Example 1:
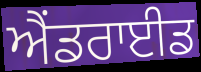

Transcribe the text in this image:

ਐਂਡਰਾਈਡ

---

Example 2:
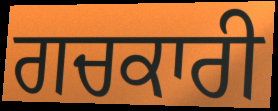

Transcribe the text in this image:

ਗਚਕਾਰੀ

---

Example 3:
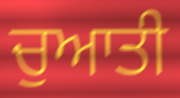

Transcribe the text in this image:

ਚੁਆਤੀ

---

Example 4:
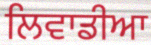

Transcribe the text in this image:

ਲਿਵਾਡੀਆ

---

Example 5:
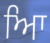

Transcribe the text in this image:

ਆਿ